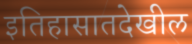
इतिहासातदेखील